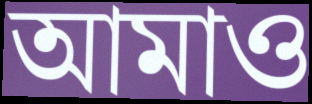
আমাও